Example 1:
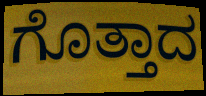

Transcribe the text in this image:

ಗೊತ್ತಾದ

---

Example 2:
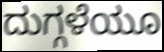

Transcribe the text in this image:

ದುಗ್ಗಳೆಯೂ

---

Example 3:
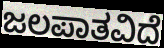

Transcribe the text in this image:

ಜಲಪಾತವಿದೆ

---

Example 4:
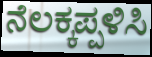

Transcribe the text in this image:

ನೆಲಕ್ಕಪ್ಪಳಿಸಿ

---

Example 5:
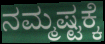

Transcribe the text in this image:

ನಮ್ಮಷ್ಟಕ್ಕೆ